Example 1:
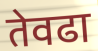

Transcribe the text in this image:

तेवढा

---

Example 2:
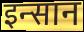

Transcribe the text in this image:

इन्सान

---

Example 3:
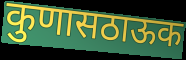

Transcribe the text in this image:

कुणासठाऊक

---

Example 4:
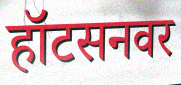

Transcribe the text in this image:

हॉटसनवर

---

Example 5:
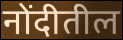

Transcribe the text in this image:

नोंदीतील